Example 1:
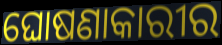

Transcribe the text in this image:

ଘୋଷଣାକାରୀର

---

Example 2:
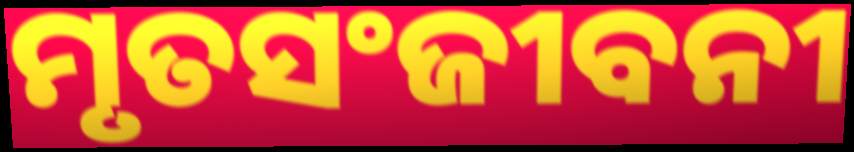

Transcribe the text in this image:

ମୃତସଂଜୀବନୀ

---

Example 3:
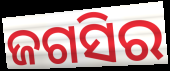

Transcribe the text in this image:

ଜଗସିର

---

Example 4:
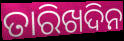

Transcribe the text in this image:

ତାରିଖଦିନ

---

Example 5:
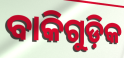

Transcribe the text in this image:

ବାକିଗୁଡ଼ିକ